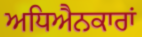
ਅਧਿਐਨਕਾਰਾਂ